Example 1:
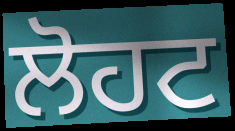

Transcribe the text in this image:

ਲੋਹਟ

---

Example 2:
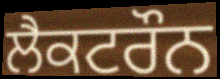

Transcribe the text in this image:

ਲੈਕਟਰੌਨ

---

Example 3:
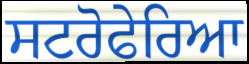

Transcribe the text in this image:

ਸਟਰੋਫੇਰਿਆ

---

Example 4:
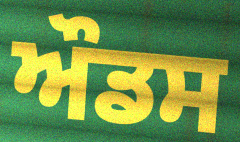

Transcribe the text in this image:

ਔਡਸ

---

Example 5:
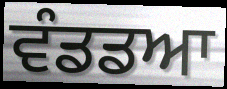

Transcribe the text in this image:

ਵੰਡਡਆ